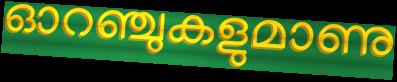
ഓറഞ്ചുകളുമാണു